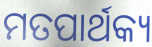
ମତପାର୍ଥକ୍ୟ